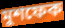
মুশফেক